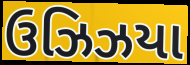
ઉઝિઝયા